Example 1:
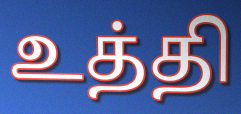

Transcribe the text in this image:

உத்தி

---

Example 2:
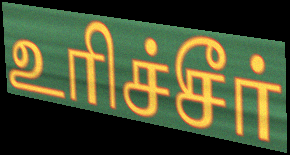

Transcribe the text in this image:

உரிச்சீர்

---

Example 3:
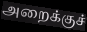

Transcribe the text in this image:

அறைக்குச்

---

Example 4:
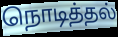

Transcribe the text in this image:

நொடித்தல்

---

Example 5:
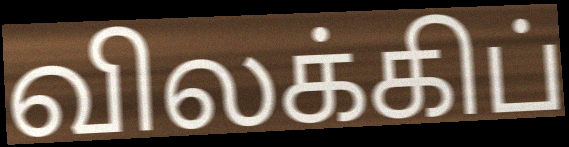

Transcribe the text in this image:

விலக்கிப்